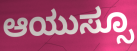
ಆಯುಸ್ಸೂ